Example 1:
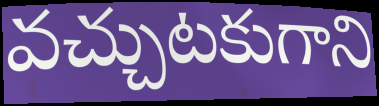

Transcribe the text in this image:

వచ్చుటకుగాని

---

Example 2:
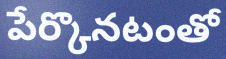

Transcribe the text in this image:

పేర్కొనటంతో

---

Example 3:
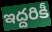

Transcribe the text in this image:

ఇద్దరికీ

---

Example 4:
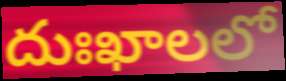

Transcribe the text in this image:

దుఃఖాలలో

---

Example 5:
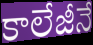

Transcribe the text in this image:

కాలేజీనే